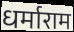
धर्माराम